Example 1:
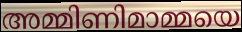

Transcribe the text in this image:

അമ്മിണിമാമ്മയെ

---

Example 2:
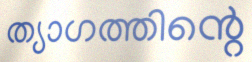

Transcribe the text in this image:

ത്യാഗത്തിന്റെ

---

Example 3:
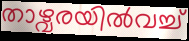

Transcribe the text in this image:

താഴ്വരയിൽവച്ച്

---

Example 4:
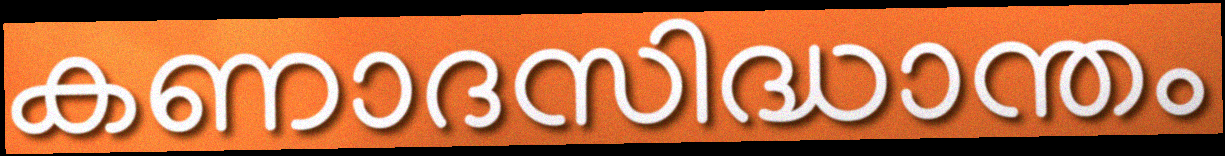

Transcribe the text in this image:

കണാദസിദ്ധാന്തം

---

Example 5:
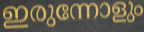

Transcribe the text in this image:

ഇരുന്നോളും